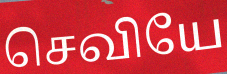
செவியே